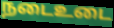
நடைஉடை